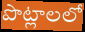
పొట్లాలలో